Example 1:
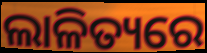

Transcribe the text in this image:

ଲାଳିତ୍ୟରେ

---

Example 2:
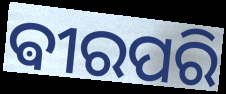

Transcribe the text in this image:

ଵୀରପରି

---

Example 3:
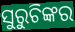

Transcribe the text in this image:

ସୁରୁଚିଙ୍କର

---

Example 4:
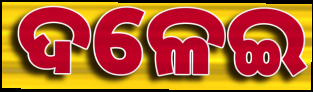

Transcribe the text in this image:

ଦଳେଇ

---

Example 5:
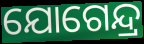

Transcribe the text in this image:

ଯୋଗେନ୍ଦ୍ର